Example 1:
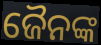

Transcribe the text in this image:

ଜୈନଙ୍କ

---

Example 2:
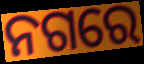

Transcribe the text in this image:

ନଗରେ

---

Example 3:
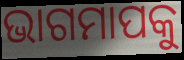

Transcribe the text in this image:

ଭାଗମାପକୁ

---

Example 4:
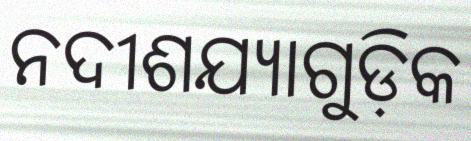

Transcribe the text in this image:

ନଦୀଶଯ୍ୟାଗୁଡ଼ିକ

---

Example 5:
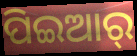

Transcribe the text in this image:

ପିଇଆର୍